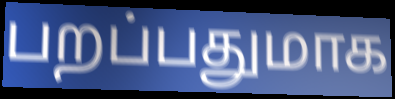
பறப்பதுமாக